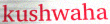
kushwaha